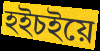
হইচইয়ে